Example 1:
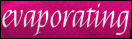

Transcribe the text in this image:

evaporating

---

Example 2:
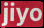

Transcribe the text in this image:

jiyo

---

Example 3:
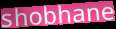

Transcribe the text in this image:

shobhane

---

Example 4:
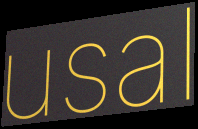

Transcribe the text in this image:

usal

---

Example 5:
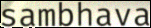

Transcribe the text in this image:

sambhava